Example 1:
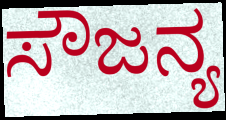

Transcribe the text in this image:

ಸೌಜನ್ಯ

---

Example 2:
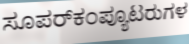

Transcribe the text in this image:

ಸೂಪರ್‌ಕಂಪ್ಯೂಟರುಗಳ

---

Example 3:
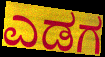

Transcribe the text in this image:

ಎಡಗ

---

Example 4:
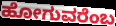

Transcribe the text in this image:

ಹೋಗುವರೆಂಬ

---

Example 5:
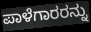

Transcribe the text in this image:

ಪಾಳೆಗಾರರನ್ನು